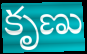
కృణు